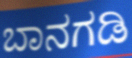
ಬಾನಗಡಿ